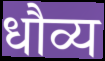
धौव्य